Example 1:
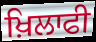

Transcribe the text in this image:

ਖ਼ਿਲਾਫੀ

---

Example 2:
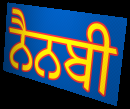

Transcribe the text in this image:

ਨੈਨਬੀ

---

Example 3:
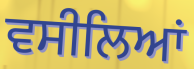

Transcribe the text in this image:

ਵਸੀਲਿਆਂ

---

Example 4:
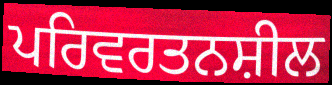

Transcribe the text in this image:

ਪਰਿਵਰਤਨਸ਼ੀਲ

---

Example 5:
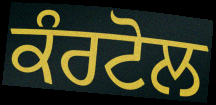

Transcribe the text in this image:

ਕੰਰਟੋਲ